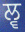
ਲ੍ਵ